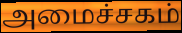
அமைச்சகம்